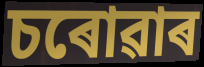
চৰোৱাৰ